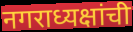
नगराध्यक्षांची